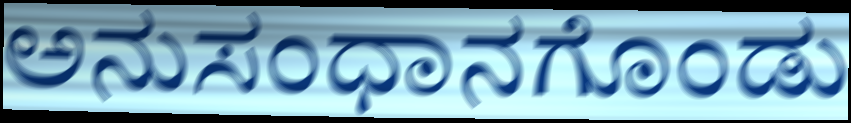
ಅನುಸಂಧಾನಗೊಂಡು